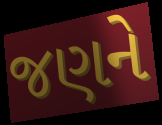
જણને